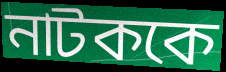
নাটককে